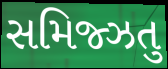
સમિજ્ઝતુ